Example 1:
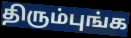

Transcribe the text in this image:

திரும்புங்க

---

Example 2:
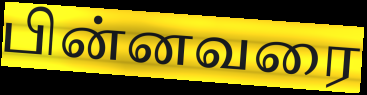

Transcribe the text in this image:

பின்னவரை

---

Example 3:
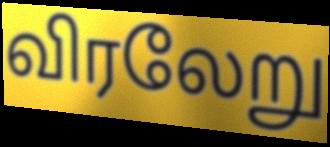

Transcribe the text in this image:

விரலேறு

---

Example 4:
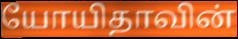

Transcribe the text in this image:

யோயிதாவின்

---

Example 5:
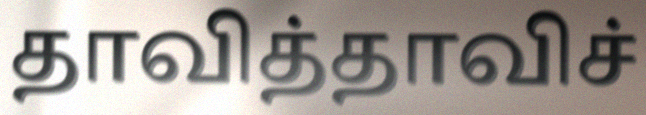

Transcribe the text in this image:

தாவித்தாவிச்